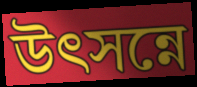
উৎসন্নে